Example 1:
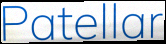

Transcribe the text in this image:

Patellar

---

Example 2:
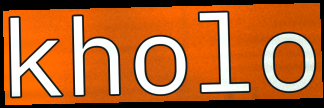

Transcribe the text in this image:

kholo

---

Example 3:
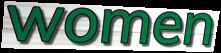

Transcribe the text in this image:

women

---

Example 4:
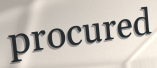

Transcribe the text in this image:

procured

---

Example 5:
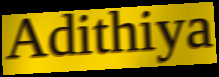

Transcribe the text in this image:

Adithiya